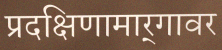
प्रदक्षिणामार्गावर